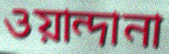
ওয়ান্দানা